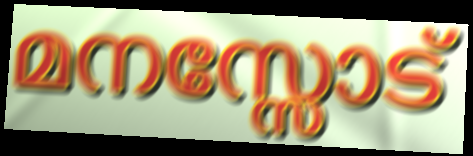
മനസ്സോട്